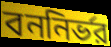
বননির্ভর